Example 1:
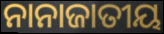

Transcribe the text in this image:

ନାନାଜାତୀୟ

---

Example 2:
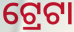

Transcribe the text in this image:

ଟ୍ରେଟା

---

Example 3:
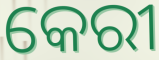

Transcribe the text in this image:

କେରୀ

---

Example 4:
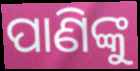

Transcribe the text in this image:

ପାଣିଙ୍କୁ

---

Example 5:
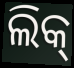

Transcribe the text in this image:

ଲିକ୍